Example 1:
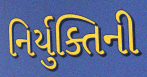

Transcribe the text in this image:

નિર્યુક્તિની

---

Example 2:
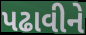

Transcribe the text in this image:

પઢાવીને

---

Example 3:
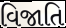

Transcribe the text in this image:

વિજાતિ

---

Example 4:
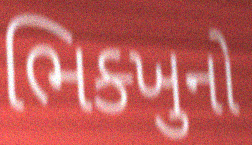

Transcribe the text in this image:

ભિક્ખુનો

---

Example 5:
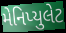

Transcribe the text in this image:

મેનિપ્યુલેટ